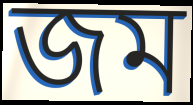
জম